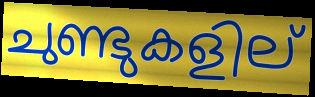
ചുണ്ടുകളില്